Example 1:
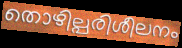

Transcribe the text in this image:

തൊഴില്പരിശീലനം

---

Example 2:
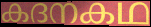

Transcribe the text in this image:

കദനകഥ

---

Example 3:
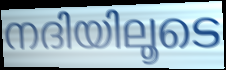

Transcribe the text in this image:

നദിയിലൂടെ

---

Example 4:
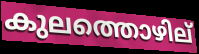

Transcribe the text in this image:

കുലത്തൊഴില്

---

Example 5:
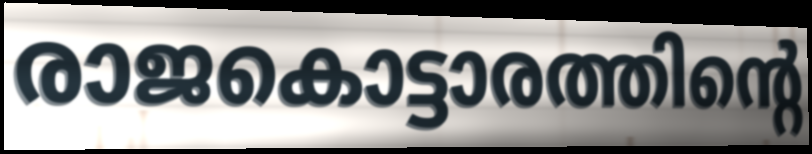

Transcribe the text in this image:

രാജകൊട്ടാരത്തിന്റെ